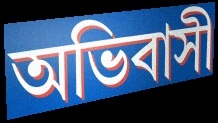
অভিবাসী